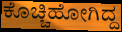
ಕೊಚ್ಚಿಹೋಗಿದ್ದ